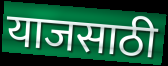
याजसाठी